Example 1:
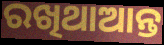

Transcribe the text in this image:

ରଖିଥାଆନ୍ତ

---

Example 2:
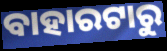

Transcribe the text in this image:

ବାହାରଟାରୁ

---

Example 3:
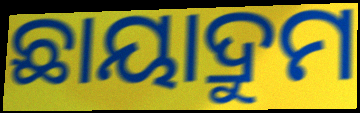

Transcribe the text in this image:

ଛାୟାଦ୍ରୁମ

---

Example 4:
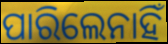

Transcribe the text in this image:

ପାରିଲେନାହିଁ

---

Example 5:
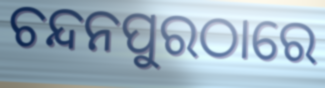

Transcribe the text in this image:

ଚନ୍ଦନପୁରଠାରେ